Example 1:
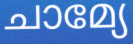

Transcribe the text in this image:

ചാമ്യേ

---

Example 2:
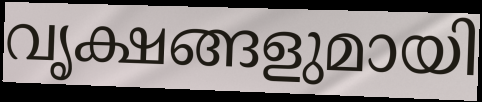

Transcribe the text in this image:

വൃക്ഷങ്ങളുമായി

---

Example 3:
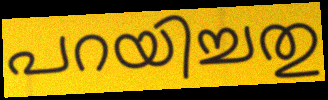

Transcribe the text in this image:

പറയിച്ചതു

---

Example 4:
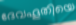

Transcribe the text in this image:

ദേവഹൂതിയെ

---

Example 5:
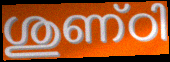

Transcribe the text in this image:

ശുണ്‌ഠി